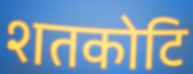
शतकोटि